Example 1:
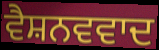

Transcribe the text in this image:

ਵੈਸ਼ਨਵਵਾਦ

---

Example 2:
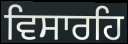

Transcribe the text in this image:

ਵਿਸਾਰਹਿ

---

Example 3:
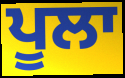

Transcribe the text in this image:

ਪੂਲਾ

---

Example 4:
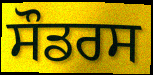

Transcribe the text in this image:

ਸੌਡਰਸ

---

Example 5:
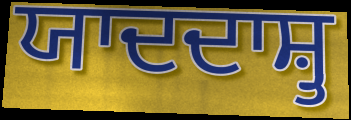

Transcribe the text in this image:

ਯਾਦਦਾਸ਼੍ਤ